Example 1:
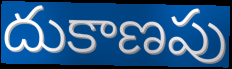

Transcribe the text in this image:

దుకాణపు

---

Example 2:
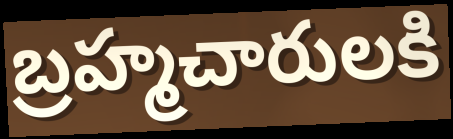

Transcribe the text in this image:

బ్రహ్మచారులకి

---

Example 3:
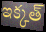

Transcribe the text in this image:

ఇక్కత్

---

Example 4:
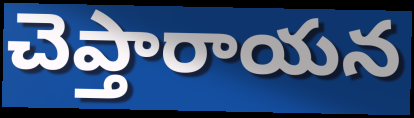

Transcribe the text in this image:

చెప్తారాయన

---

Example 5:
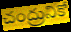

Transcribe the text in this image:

చంద్రునికో